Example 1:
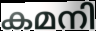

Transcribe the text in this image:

കമനി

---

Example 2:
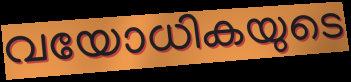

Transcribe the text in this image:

വയോധികയുടെ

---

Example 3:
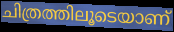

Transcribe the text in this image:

ചിത്രത്തിലൂടെയാണ്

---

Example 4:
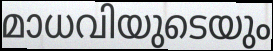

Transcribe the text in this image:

മാധവിയുടെയും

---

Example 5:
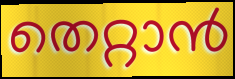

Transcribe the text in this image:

തെറ്റാൻ